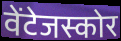
वेंटेजस्कोर